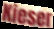
Kieser